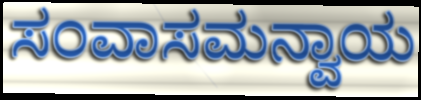
ಸಂವಾಸಮನ್ವಾಯ